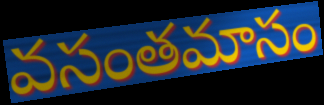
వసంతమాసం